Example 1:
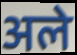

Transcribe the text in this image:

अले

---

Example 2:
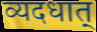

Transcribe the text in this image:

व्यदधात्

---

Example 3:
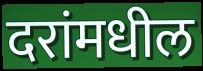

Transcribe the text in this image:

दरांमधील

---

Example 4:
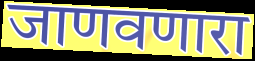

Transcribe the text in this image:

जाणवणारा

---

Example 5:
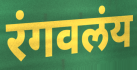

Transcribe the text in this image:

रंगवलंय